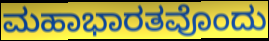
ಮಹಾಭಾರತವೊಂದು